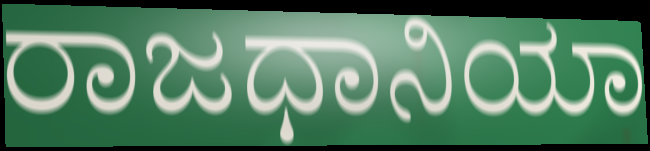
ರಾಜಧಾನಿಯಾ